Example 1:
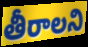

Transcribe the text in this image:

తీరాలని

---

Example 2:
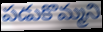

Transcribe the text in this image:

పడుకొమ్మని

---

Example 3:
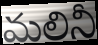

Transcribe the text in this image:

మలినీ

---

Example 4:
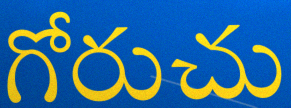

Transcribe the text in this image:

గోరుచు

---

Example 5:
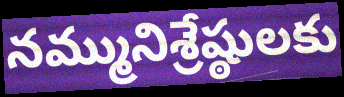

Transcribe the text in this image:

నమ్మునిశ్రేష్ఠులకు